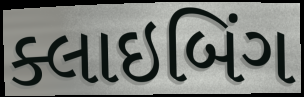
ક્લાઇબિંગ